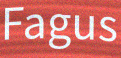
Fagus